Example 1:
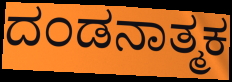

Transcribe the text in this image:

ದಂಡನಾತ್ಮಕ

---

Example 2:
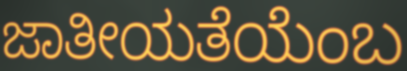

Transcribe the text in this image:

ಜಾತೀಯತೆಯೆಂಬ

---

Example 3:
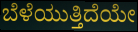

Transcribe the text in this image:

ಬೆಳೆಯುತ್ತಿದೆಯೇ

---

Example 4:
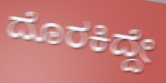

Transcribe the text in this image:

ದೊರಕಿದ್ದೇ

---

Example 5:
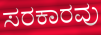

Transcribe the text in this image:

ಸರಕಾರವು